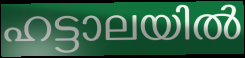
ഹട്ടാലയിൽ